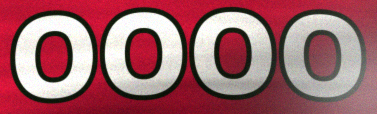
OOOO